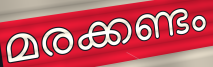
മരക്കണ്ടം